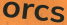
orcs